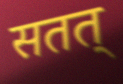
सतत्